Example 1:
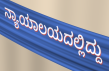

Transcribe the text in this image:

ನ್ಯಾಯಾಲಯದಲ್ಲಿದ್ದು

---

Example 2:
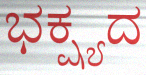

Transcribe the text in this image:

ಭಕ್ಷ್ಯದ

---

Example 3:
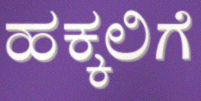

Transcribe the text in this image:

ಹಕ್ಕಲಿಗೆ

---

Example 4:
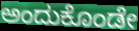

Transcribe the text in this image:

ಅಂದುಕೊಂಡೇ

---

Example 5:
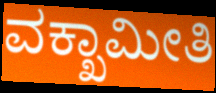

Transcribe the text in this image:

ವಕ್ಖಾಮೀತಿ